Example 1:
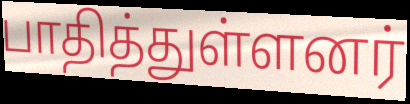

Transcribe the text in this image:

பாதித்துள்ளனர்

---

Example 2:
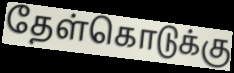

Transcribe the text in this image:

தேள்கொடுக்கு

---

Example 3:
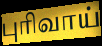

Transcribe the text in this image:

புரிவாய்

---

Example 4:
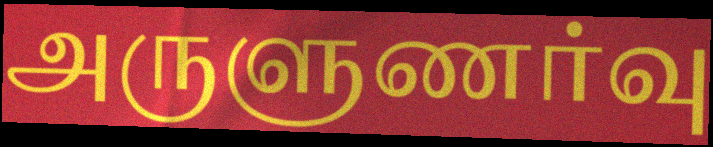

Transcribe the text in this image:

அருளுணர்வு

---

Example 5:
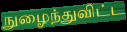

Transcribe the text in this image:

நுழைந்துவிட்ட